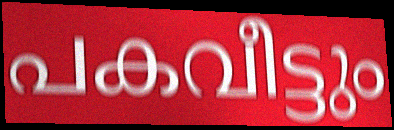
പകവീട്ടും